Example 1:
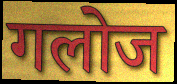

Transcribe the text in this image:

गलोज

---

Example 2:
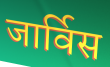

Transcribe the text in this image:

जार्विस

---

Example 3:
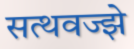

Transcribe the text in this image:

सत्थवज्झे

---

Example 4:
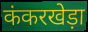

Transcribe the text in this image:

कंकरखेड़ा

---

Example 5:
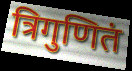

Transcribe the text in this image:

त्रिगुणितं